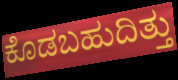
ಕೊಡಬಹುದಿತ್ತು